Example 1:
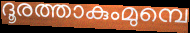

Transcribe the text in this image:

ദൂരത്താകുംമുമ്പെ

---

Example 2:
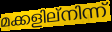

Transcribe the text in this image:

മക്കളില്നിന്ന്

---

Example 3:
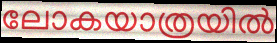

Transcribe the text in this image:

ലോകയാത്രയിൽ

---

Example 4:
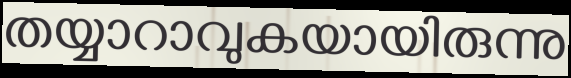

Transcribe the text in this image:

തയ്യാറാവുകയായിരുന്നു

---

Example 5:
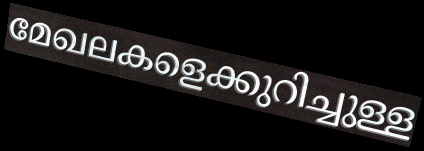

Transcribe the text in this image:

മേഖലകളെക്കുറിച്ചുള്ള